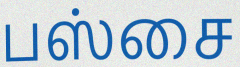
பஸ்சை